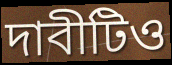
দাবীটিও